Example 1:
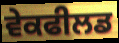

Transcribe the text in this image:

ਵੇਕਫੀਲਡ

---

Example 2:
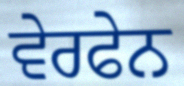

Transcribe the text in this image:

ਵੇਰਫੇਨ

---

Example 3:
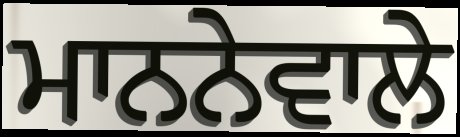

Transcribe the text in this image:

ਮਾਨਨੇਵਾਲੇ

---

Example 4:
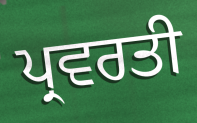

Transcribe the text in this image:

ਪ੍ਰਵਰਤੀ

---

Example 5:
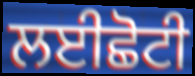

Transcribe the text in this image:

ਲਈਛੋਟੀ